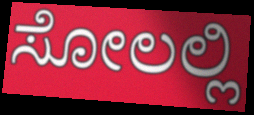
ಸೋಲಲ್ಲಿ